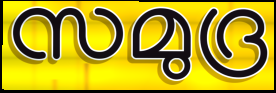
സമുദ്ര